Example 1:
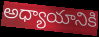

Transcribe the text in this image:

అధ్యాయానికి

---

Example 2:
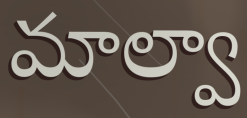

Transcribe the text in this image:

మాల్వా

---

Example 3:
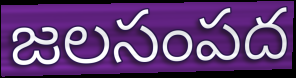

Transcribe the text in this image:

జలసంపద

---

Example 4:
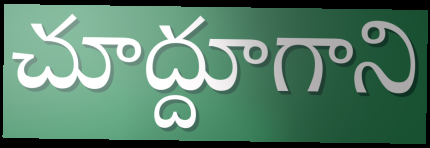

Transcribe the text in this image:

చూద్దూగాని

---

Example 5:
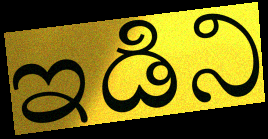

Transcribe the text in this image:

ఇడిని